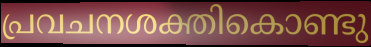
പ്രവചനശക്തികൊണ്ടു